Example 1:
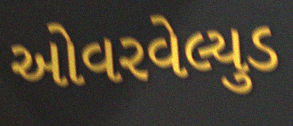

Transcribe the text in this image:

ઓવરવેલ્યુડ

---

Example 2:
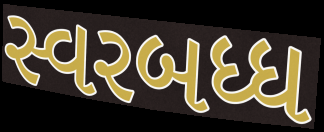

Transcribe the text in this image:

સ્વરબધ્ધ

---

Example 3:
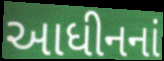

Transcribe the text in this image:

આધીનનાં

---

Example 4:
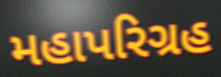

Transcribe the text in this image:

મહાપરિગ્રહ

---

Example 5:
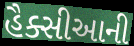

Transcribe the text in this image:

હૈક્સીઆની